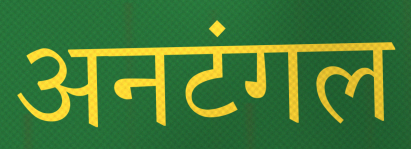
अनटंगल